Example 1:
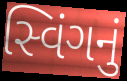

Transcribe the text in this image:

સ્વિંગનું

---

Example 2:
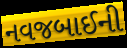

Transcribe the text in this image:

નવજબાઈની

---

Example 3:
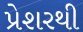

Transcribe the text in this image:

પ્રેશરથી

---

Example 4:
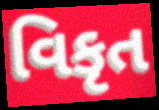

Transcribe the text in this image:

વિકૃત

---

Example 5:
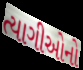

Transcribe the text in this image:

ત્યાગીઓનો